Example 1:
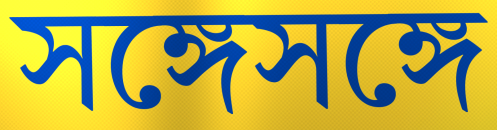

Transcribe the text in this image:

সঙ্গেসঙ্গে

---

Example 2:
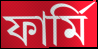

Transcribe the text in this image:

ফার্মি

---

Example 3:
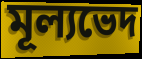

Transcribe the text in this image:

মূল্যভেদ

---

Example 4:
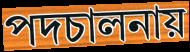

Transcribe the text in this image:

পদচালনায়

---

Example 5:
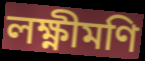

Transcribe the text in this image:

লক্ষ্ণীমণি